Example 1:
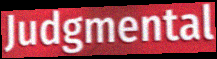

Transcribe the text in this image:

Judgmental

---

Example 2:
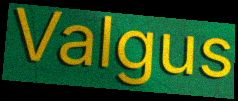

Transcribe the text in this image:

Valgus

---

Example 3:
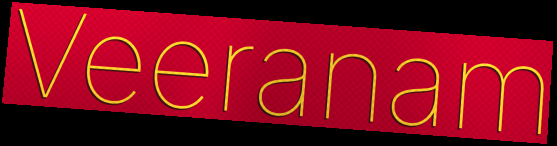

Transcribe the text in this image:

Veeranam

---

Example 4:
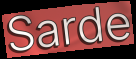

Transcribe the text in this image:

Sarde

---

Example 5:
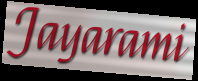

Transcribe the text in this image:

Jayarami